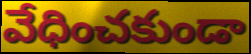
వేధించకుండా